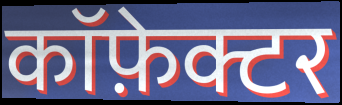
कॉफ़ेक्टर